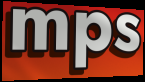
mps